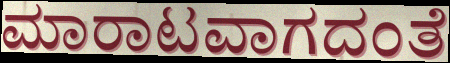
ಮಾರಾಟವಾಗದಂತೆ